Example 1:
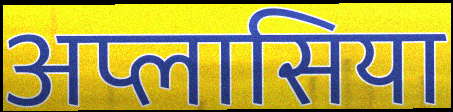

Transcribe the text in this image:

अप्लासिया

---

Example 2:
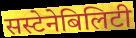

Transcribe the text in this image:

सस्टेनेबिलिटी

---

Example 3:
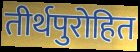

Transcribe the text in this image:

तीर्थपुरोहित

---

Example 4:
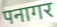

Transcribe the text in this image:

पनागर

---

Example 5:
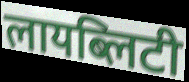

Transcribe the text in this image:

लायब्लिटी